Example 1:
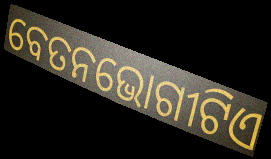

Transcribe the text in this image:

ବେତନଭୋଗୀଟିଏ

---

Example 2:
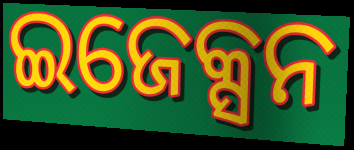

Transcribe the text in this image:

ଇଜେକ୍ସନ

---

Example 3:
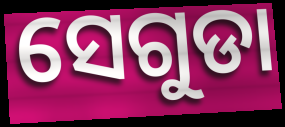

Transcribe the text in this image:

ସେଗୁଡା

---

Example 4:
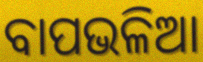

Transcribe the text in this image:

ବାପଭଳିଆ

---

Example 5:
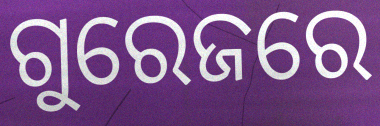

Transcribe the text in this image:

ଗୁରେଜରେ